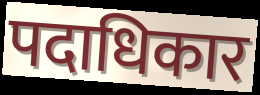
पदाधिकार